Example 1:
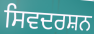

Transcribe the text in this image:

ਸਿਵਦਰਸ਼ਨ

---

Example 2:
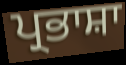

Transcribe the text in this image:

ਪ੍ਰਭਾਸ਼ਾ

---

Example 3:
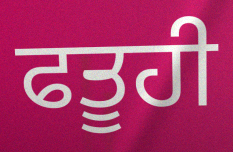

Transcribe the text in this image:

ਫਤੂਹੀ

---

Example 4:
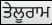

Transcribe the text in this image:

ਤੇਲੂਰਾਮ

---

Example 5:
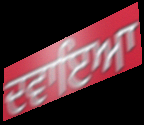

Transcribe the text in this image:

ਦਵਾਇਆ